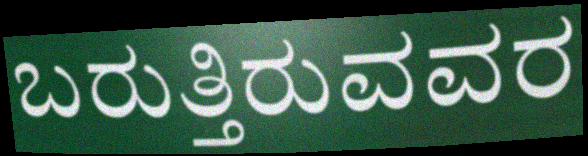
ಬರುತ್ತಿರುವವರ